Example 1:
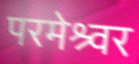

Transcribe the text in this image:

परमेश्र्वर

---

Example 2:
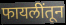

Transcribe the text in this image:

फायलींतून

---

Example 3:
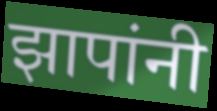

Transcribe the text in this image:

झापांनी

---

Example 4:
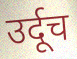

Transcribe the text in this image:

उर्दूच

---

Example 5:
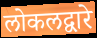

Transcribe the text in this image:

लोकलद्वारे